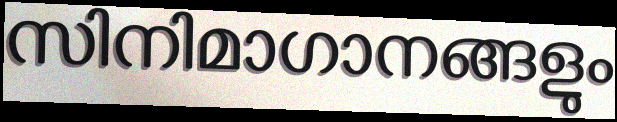
സിനിമാഗാനങ്ങളും